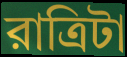
রাত্রিটা